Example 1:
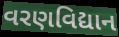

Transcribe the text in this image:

વરણવિદ્યાન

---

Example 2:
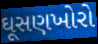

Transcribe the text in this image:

ઘૂસણખોરો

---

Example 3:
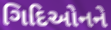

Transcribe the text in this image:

ગિદિઓનને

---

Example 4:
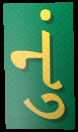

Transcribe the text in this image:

નું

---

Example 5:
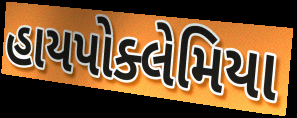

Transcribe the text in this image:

હાયપોક્લેમિયા